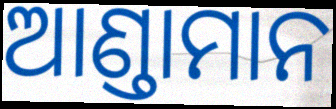
ଆଣ୍ଡାମାନ